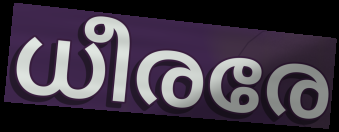
ധീരരേ